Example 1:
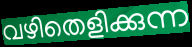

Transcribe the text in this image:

വഴിതെളിക്കുന്ന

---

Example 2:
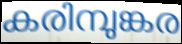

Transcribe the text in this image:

കരിമ്പുങ്കര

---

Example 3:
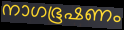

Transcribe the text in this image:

നാഗഭൂഷണം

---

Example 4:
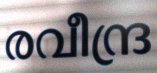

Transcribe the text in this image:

രവീന്ദ്ര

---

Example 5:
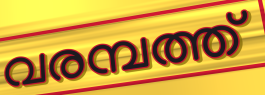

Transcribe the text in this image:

വരമ്പത്ത്